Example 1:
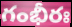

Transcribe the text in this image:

గంభీరః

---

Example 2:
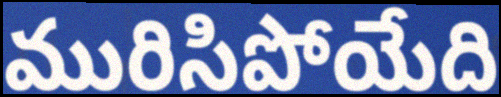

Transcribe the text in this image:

మురిసిపోయేది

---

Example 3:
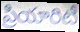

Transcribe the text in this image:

ప్రియారిటీ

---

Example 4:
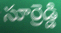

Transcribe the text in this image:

సూర్రెడ్డి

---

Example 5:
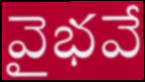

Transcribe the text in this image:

వైభవే